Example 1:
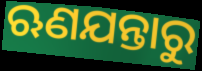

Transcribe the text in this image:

ଋଣଯନ୍ତାରୁ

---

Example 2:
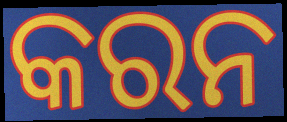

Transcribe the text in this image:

କରନ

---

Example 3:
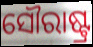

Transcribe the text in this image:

ସୌରାଷ୍ଟ୍ର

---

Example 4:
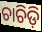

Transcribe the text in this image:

ଚାଚିଡ଼ି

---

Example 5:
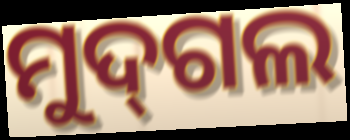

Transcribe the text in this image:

ମୁଦ୍‌ଗଲ